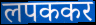
लपककर